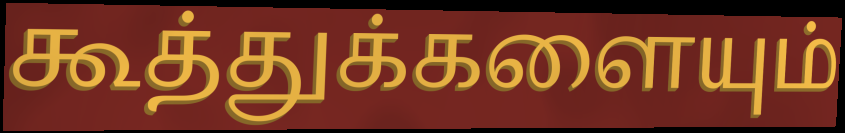
கூத்துக்களையும்